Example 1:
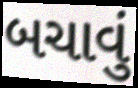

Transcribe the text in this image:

બચાવું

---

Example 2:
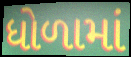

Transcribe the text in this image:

ધોળામાં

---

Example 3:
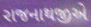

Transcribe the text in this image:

રાજનાથજીએ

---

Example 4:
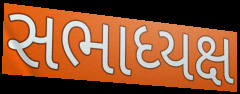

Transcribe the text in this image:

સભાધ્યક્ષ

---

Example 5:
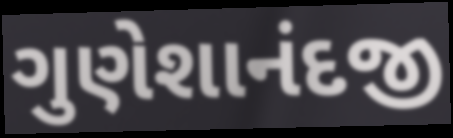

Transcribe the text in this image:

ગુણેશાનંદજી